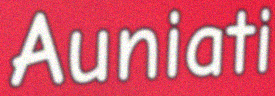
Auniati